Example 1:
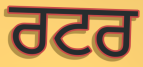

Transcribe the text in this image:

ਰਟਰ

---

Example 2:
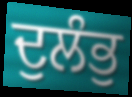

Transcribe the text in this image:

ਦੁਲੰਭੁ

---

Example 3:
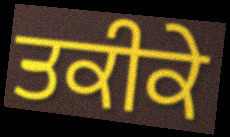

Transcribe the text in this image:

ਤਕੀਕੇ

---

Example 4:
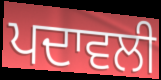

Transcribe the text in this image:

ਪਦਾਵਲੀ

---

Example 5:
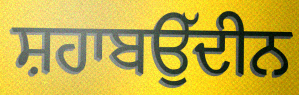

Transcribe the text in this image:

ਸ਼ਹਾਬਉੱਦੀਨ